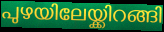
പുഴയിലേയ്ക്കിറങ്ങി